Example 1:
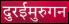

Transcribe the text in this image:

दुरईमुरुगन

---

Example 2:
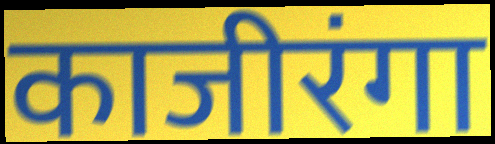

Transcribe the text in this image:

काजीरंगा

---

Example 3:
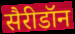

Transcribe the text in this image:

सैरीडॉन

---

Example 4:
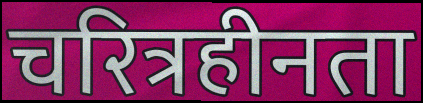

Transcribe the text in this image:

चरित्रहीनता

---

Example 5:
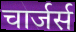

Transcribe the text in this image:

चार्जर्स